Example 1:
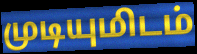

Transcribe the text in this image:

முடியுமிடம்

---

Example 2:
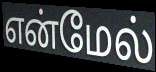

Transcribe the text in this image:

என்மேல்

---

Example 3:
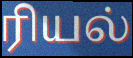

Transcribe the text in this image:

ரியல்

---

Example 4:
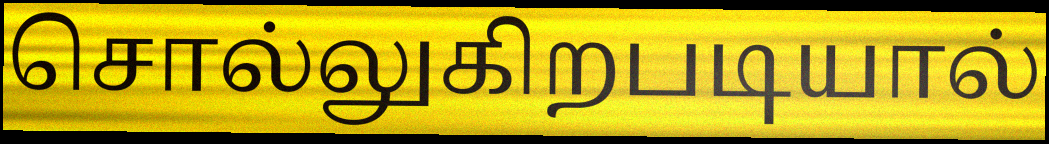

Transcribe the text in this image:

சொல்லுகிறபடியால்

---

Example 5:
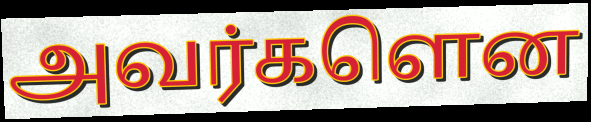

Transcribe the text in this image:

அவர்களென